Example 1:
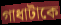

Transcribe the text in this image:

গাধাটাকে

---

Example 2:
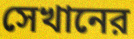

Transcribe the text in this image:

সেখানের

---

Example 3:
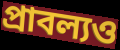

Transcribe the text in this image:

প্রাবল্যও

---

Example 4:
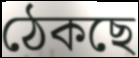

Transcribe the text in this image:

ঠেকছে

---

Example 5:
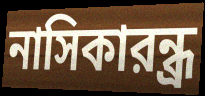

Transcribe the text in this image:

নাসিকারন্ধ্র